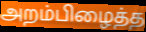
அறம்பிழைத்த